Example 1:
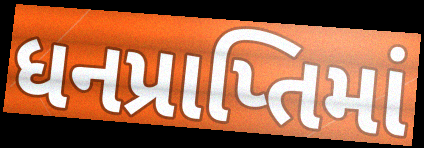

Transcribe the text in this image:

ધનપ્રાપ્તિમાં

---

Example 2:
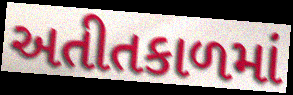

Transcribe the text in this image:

અતીતકાળમાં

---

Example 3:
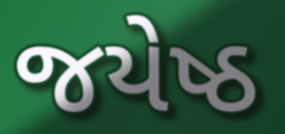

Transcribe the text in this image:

જયેષ્ઠ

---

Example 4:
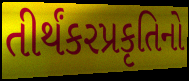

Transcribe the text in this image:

તીર્થંકરપ્રકૃતિનો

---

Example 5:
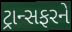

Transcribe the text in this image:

ટ્રાન્સફરને